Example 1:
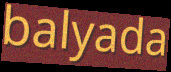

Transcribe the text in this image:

balyada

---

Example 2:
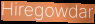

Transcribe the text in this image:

Hiregowdar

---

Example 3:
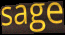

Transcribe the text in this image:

sage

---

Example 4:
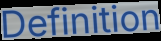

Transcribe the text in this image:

Definition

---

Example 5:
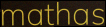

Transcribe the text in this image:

mathas